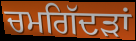
ਚਮਗਿੱਦੜਾਂ